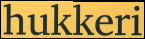
hukkeri